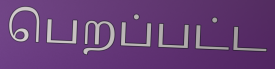
பெறப்பட்ட